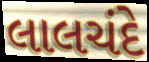
લાલચંદે